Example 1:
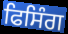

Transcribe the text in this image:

ਫਿਸਿੰਗ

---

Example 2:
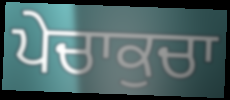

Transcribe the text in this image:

ਪੇਚਾਕੁਚਾ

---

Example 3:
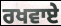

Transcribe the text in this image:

ਰਖਵਾਏ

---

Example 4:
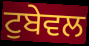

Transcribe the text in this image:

ਟੁਬੇਵਲ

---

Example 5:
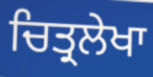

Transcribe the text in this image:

ਚਿਤ੍ਰਲੇਖਾ